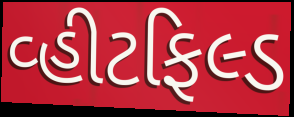
વ્હીટફિલ્ડ